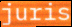
juris